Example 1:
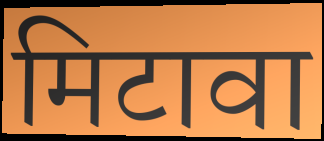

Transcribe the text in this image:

मिटावा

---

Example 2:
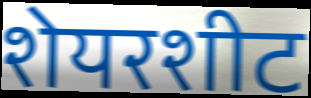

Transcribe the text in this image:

शेयरशीट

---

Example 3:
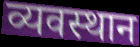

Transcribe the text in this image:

व्यवस्थान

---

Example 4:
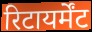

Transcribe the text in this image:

रिटायर्मेंट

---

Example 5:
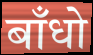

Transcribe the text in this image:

बाँधो